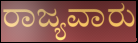
ರಾಜ್ಯವಾರು